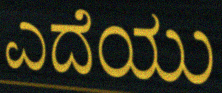
ಎದೆಯು